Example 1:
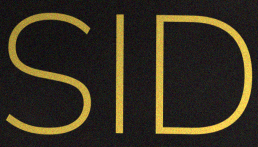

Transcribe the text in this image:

SID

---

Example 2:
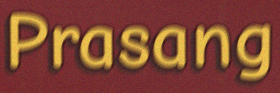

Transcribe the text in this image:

Prasang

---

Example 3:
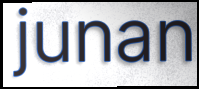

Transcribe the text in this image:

junan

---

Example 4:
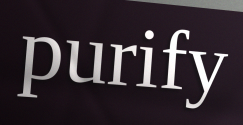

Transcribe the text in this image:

purify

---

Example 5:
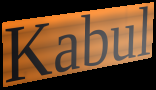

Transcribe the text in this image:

Kabul